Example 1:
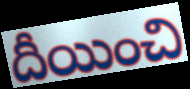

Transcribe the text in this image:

దీయించి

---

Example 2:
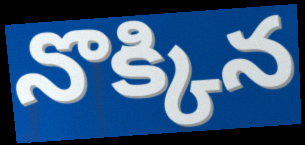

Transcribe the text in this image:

నొక్కిన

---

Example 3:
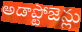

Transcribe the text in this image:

అడాప్టోజెన్లు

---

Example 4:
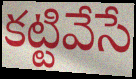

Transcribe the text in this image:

కట్టివేసే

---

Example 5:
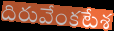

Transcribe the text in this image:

దిరువేంకటేశ